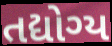
તદ્યોગ્ય